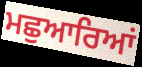
ਮਛੁਆਰਿਆਂ